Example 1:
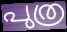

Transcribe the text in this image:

പുത്ര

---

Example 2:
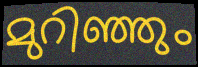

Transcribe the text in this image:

മുറിഞ്ഞും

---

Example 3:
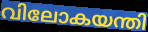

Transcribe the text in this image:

വിലോകയന്തി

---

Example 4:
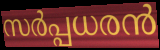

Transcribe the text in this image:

സർപ്പധരൻ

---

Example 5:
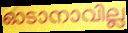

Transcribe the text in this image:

ഓടാനാവില്ല